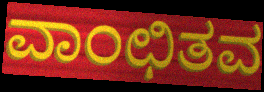
ವಾಂಛಿತವ